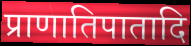
प्राणातिपातादि